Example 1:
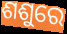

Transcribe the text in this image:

ଶଶୁରେ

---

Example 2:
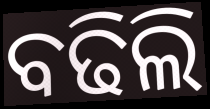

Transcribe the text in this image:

ବଢିଲି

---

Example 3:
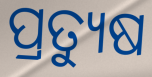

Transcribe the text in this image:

ପ୍ରତ୍ୟୁଷ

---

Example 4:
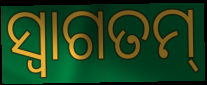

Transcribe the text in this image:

ସ୍ୱାଗତମ୍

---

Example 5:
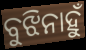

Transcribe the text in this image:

ବୁଝିନାହୁଁ